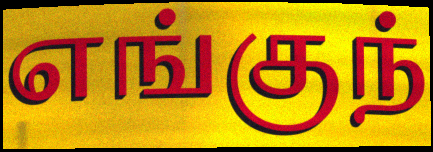
எங்குந்